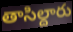
తాసిల్దారు